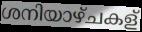
ശനിയാഴ്ചകള്